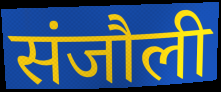
संजौली